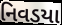
નિવડયા